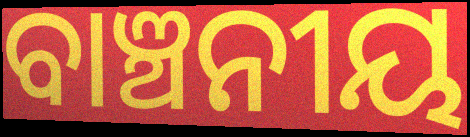
ବାଞ୍ଚନୀୟ